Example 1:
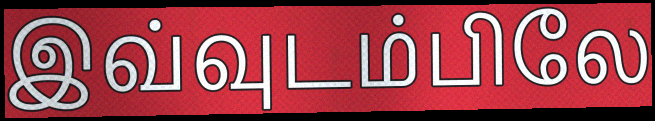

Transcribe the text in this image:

இவ்வுடம்பிலே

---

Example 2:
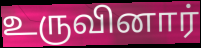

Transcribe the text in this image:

உருவினார்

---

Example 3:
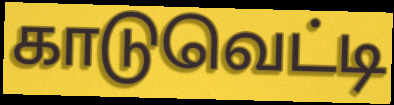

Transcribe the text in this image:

காடுவெட்டி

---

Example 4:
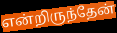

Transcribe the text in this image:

என்றிருந்தேன்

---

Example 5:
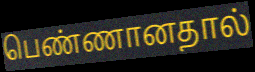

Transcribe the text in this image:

பெண்ணானதால்